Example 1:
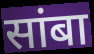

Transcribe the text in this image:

सांबा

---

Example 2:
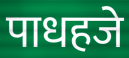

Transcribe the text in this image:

पाधहजे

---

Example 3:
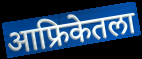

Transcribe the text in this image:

आफ्रिकेतला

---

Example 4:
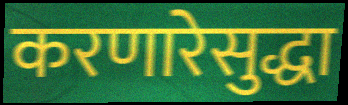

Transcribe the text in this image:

करणारेसुद्धा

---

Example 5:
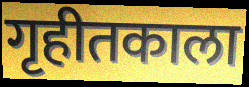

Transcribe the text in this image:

गृहीतकाला